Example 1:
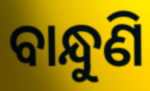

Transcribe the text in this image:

ବାନ୍ଧୁଣି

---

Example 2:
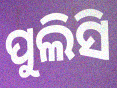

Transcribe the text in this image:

ପୁଲିସି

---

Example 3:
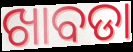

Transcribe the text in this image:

ଖାବଡା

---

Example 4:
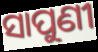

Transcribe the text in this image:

ସାପୁଣୀ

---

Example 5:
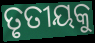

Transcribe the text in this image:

ତୃତୀୟକୁ